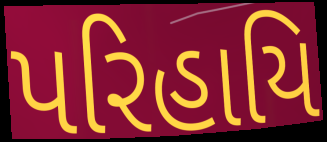
પરિહાયિ